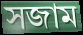
সজাম